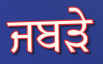
ਜਬੜੇ